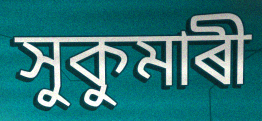
সুকুমাৰী